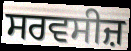
ਸਰਵਸੀਜ਼